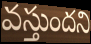
వస్తుందని